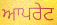
ਆਪਰੇਟ